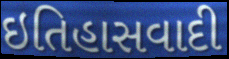
ઇતિહાસવાદી